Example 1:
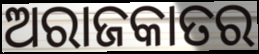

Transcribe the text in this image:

ଅରାଜକାତର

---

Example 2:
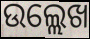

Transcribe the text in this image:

ଉଲ୍ଲେଖ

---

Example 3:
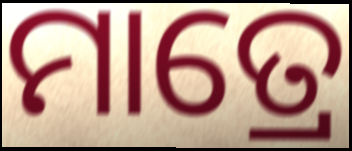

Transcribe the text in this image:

ମାତ୍ରେ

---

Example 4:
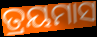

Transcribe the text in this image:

ତ୍ରୟମାସ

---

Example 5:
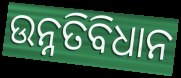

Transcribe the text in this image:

ଉନ୍ନତିବିଧାନ